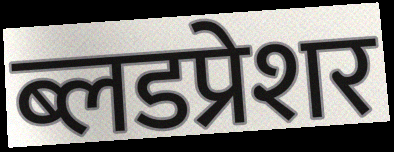
ब्लडप्रेशर